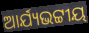
ଆର୍ଯ୍ୟଭଟ୍ଟୀୟ